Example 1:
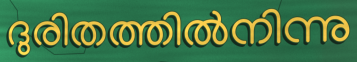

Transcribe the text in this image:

ദുരിതത്തിൽനിന്നു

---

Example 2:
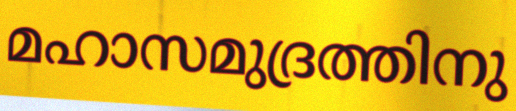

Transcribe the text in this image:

മഹാസമുദ്രത്തിനു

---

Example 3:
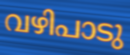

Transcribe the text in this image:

വഴിപാടു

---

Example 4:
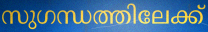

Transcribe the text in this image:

സുഗന്ധത്തിലേക്ക്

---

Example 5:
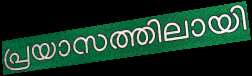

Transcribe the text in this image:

പ്രയാസത്തിലായി